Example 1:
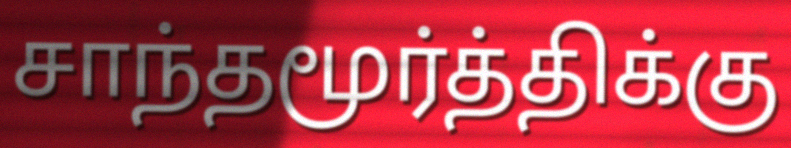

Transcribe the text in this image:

சாந்தமூர்த்திக்கு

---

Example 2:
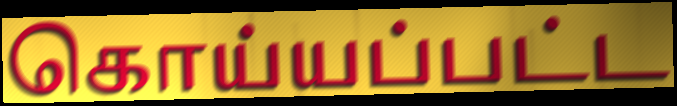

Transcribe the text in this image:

கொய்யப்பட்ட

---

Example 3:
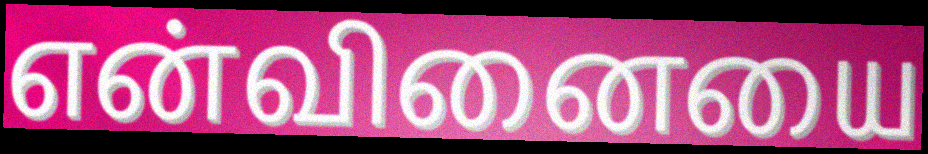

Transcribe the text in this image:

என்வினையை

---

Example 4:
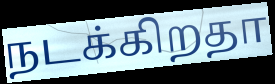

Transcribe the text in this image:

நடக்கிறதா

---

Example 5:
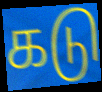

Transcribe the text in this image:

கடு